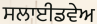
ਸਲਾਈਡਵੇਅ